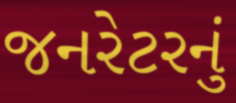
જનરેટરનું